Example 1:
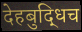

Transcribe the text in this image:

देहबुद्धिच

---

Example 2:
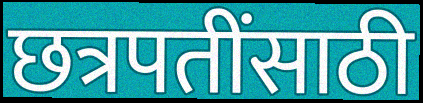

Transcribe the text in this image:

छत्रपतींसाठी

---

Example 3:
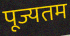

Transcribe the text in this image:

पूज्यतम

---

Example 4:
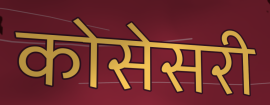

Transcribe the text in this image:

कोसेसरी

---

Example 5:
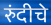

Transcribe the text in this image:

रुंदीचे